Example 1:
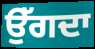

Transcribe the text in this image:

ਉੱਗਦਾ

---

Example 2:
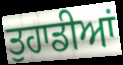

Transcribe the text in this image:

ਤੁਹਾਡੀਆਂ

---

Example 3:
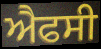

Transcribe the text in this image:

ਐਫਸੀ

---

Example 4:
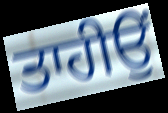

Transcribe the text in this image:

ਤਾਹੀਉਂ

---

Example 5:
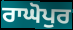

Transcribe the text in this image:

ਰਾਘੋਪੁਰ